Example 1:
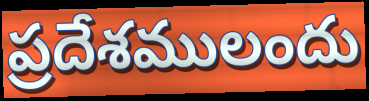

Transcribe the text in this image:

ప్రదేశములందు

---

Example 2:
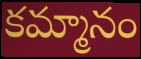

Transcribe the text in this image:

కమ్మానం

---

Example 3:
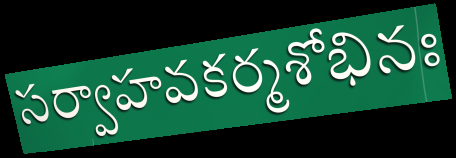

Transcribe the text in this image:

సర్వాహవకర్మశోభినః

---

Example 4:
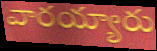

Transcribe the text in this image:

వారయ్యారు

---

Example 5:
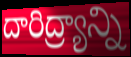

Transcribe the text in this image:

దారిద్ర్యాన్ని